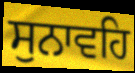
ਸੁਨਾਵਹਿ